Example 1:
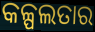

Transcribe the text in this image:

କଳ୍ପଲତାର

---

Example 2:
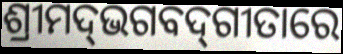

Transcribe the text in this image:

ଶ୍ରୀମଦ୍‌ଭଗବଦ୍‌ଗୀତାରେ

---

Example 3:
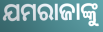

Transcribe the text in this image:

ଯମରାଜାଙ୍କୁ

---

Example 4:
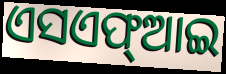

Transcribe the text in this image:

ଏସଏଫ୍ଆଇ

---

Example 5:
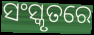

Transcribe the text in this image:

ସଂସ୍କୃତରେ